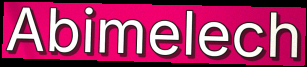
Abimelech